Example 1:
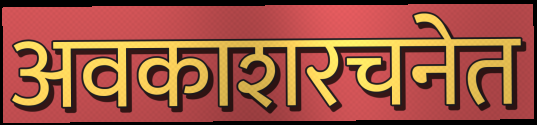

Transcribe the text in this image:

अवकाशरचनेत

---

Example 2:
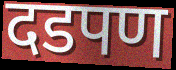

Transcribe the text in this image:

दडपण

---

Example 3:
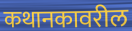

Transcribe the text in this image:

कथानकावरील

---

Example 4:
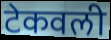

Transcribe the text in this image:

टेकवली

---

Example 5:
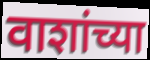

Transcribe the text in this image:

वाशांच्या